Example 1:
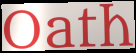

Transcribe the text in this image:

Oath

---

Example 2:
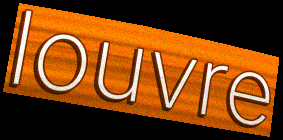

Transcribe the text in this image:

louvre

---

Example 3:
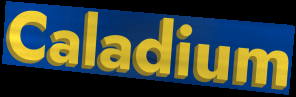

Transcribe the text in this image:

Caladium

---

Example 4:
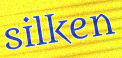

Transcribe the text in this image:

silken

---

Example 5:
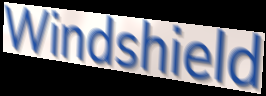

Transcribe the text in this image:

Windshield